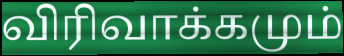
விரிவாக்கமும்